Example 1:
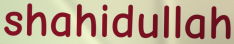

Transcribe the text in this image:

shahidullah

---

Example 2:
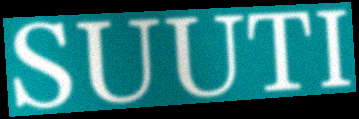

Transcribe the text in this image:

SUUTI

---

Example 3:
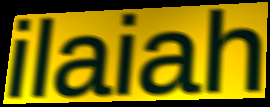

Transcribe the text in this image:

ilaiah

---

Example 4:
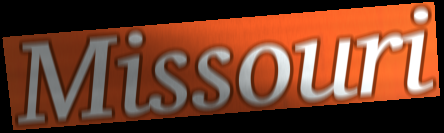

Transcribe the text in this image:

Missouri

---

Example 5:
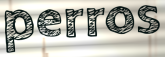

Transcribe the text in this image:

perros